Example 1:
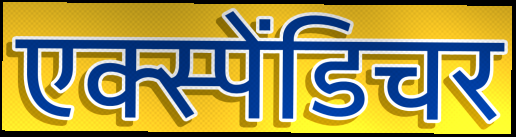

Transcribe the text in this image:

एक्स्पेंडिचर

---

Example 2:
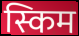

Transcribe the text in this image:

स्किम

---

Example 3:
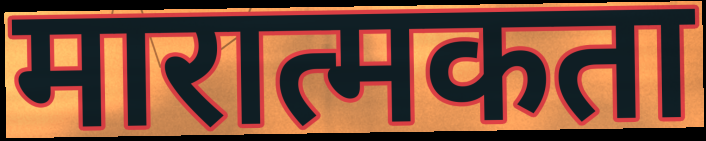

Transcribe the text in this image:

मारात्मकता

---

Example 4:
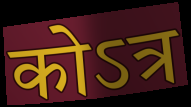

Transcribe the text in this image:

कोऽत्र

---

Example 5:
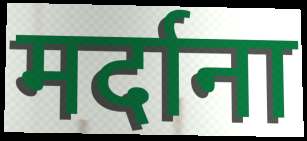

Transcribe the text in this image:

मर्दाना